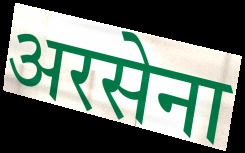
अरसेना